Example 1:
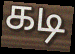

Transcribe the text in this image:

கடி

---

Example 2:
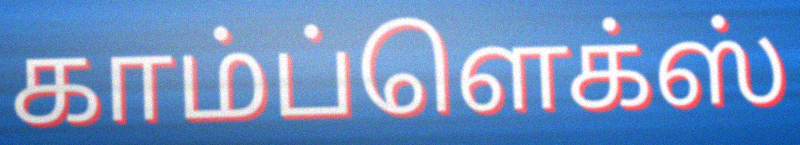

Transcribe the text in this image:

காம்ப்ளெக்ஸ்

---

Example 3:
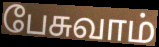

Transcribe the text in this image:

பேசுவாம்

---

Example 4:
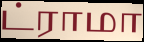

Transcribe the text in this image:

ட்ராமா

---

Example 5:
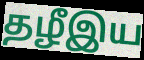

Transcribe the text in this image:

தழீஇய